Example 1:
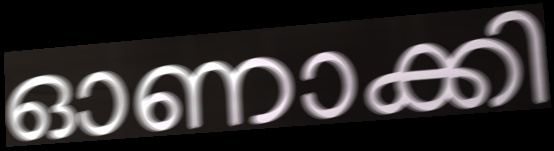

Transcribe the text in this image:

ഓണാക്കി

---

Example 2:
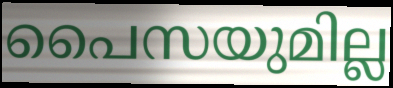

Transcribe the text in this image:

പൈസയുമില്ല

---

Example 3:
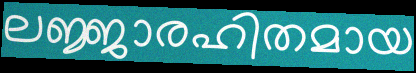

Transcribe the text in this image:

ലജ്ജാരഹിതമായ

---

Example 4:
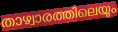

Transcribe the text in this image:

താഴ്വാരത്തിലെയും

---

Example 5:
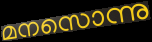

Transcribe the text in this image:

മനസൊന്നു